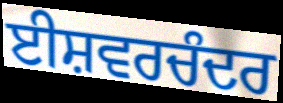
ਈਸ਼ਵਰਚੰਦਰ